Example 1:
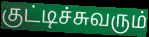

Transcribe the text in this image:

குட்டிச்சுவரும்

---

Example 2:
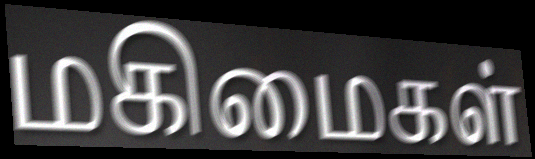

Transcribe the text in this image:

மகிமைகள்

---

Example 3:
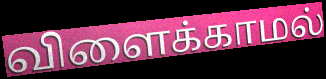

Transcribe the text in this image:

விளைக்காமல்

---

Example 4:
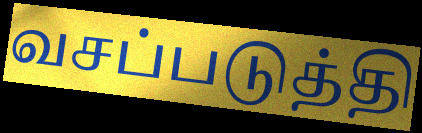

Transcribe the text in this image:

வசப்படுத்தி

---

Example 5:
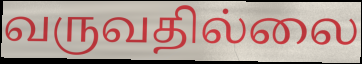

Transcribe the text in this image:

வருவதில்லை